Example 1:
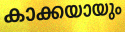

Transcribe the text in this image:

കാക്കയായും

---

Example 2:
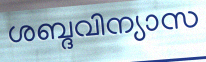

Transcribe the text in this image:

ശബ്ദവിന്യാസ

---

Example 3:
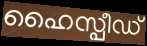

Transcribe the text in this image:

ഹൈസ്പീഡ്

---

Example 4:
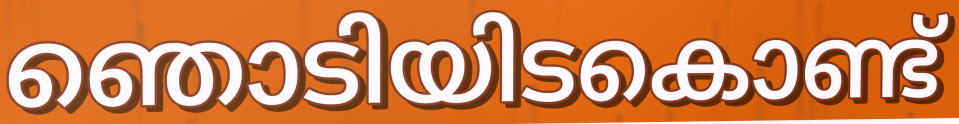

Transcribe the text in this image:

ഞൊടിയിടകൊണ്ട്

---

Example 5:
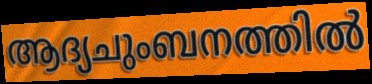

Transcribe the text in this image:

ആദ്യചുംബനത്തിൽ